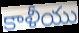
కాళీయు